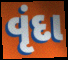
વૃંદા